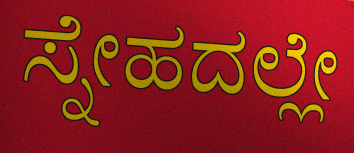
ಸ್ನೇಹದಲ್ಲೇ